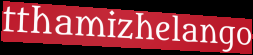
tthamizhelango